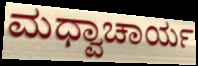
ಮಧ್ವಾಚಾರ್ಯ